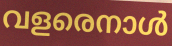
വളരെനാൾ